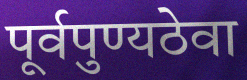
पूर्वपुण्यठेवा